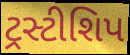
ટ્રસ્ટીશિપ